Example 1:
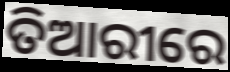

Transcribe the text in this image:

ତିଆରୀରେ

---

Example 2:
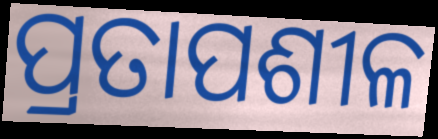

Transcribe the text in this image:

ପ୍ରତାପଶୀଳ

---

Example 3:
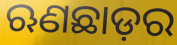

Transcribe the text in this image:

ଋଣଛାଡ଼ର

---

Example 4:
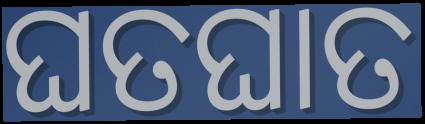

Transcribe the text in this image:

ଘତଘାତ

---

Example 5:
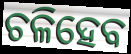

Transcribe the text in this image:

ଚଳିହେବ